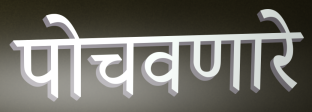
पोचवणारे